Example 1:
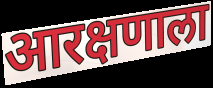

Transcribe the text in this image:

आरक्षणाला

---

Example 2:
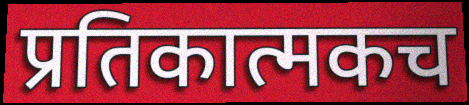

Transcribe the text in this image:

प्रतिकात्मकच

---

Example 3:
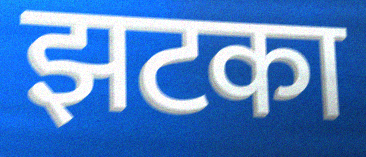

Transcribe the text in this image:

झटका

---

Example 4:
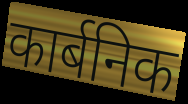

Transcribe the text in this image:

कार्बनिक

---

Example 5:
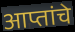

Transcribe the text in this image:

आप्तांचे